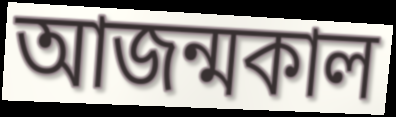
আজন্মকাল